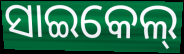
ସାଇକେଲ୍